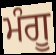
ਮੰਗੂ